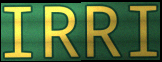
IRRI